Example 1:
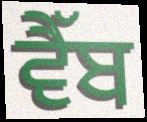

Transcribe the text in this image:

ਵੈੱਬ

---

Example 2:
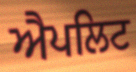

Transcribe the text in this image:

ਐਪਲਿਟ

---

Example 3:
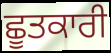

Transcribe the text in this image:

ਛੂਤਕਾਰੀ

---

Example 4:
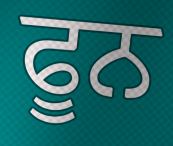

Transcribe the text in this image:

ਫੂਨ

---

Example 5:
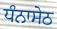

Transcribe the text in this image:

ਧੰਨਾਸੇਠ